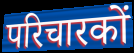
परिचारकों